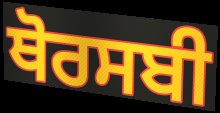
ਥੋਰਸਬੀ